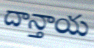
దాన్తాయ